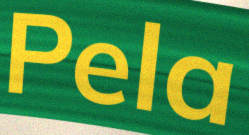
Pela